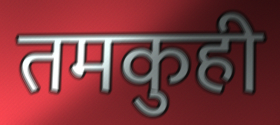
तमकुही